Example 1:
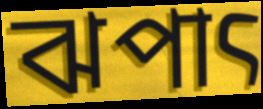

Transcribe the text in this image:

ঝপাৎ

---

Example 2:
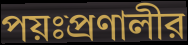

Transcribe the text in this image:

পয়ঃপ্রণালীর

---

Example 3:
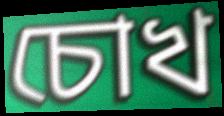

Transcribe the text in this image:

চোখ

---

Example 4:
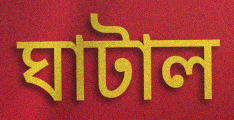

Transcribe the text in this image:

ঘাটাল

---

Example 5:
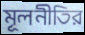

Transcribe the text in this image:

মূলনীতির